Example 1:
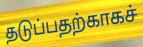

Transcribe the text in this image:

தடுப்பதற்காகச்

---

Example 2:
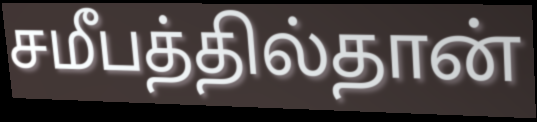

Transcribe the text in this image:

சமீபத்தில்தான்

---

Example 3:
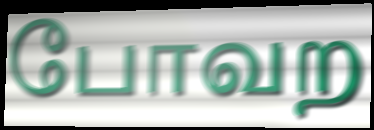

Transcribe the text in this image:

போவற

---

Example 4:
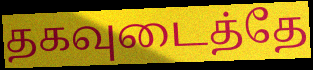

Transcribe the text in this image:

தகவுடைத்தே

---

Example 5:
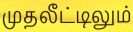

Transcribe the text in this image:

முதலீட்டிலும்